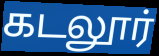
கடலூர்